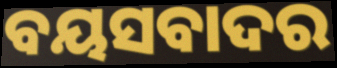
ବୟସବାଦର